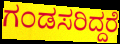
ಗಂಡಸರಿದ್ದರೆ